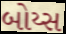
બોય્સ